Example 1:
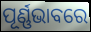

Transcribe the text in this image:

ପୂର୍ଣ୍ଣଭାବରେ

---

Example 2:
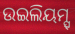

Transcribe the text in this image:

ଉଇଲିୟମ୍ସ୍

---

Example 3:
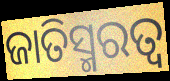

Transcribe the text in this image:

ଜାତିସ୍ମରତ୍ୱ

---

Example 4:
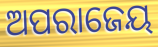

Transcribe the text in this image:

ଅପରାଜେୟ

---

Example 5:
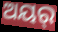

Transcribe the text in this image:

ଅୟର୍